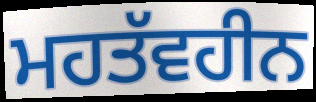
ਮਹਤੱਵਹੀਨ